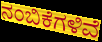
ನಂಬಿಕೆಗಳಿವೆ